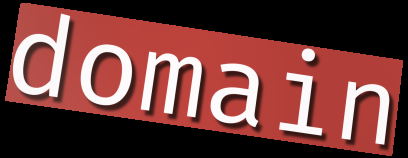
domain